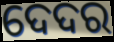
ଦେଦର